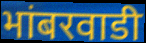
भांबरवाडी